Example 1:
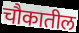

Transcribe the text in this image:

चौकातील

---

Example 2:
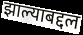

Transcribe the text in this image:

झाल्याबद्दल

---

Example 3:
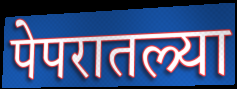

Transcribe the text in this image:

पेपरातल्या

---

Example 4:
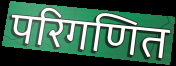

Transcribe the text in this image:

परिगणित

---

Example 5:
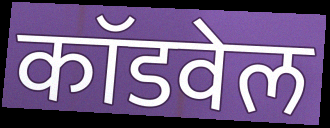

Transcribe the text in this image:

कॉडवेल